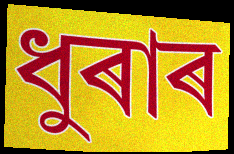
ধুৰাৰ